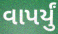
વાપર્યું